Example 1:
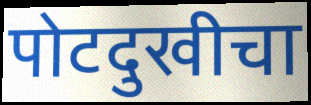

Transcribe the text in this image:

पोटदुखीचा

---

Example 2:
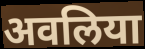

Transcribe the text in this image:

अवलिया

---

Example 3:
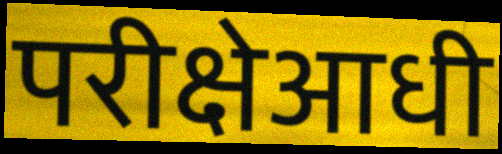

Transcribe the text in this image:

परीक्षेआधी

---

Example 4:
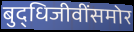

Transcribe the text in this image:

बुद्धिजीवींसमोर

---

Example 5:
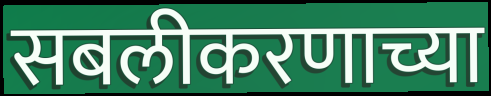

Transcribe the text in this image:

सबलीकरणाच्या